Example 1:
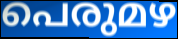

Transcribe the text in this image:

പെരുമഴ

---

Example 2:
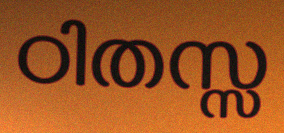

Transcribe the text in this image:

ഠിതസ്സ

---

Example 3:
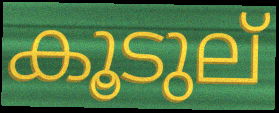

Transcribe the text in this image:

കൂടുല്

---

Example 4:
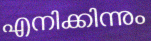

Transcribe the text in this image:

എനിക്കിന്നും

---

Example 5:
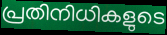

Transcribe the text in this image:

പ്രതിനിധികളുടെ